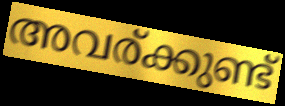
അവര്ക്കുണ്ട്